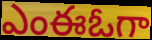
ఎంఈఓగా